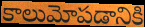
కాలుమోపడానికి